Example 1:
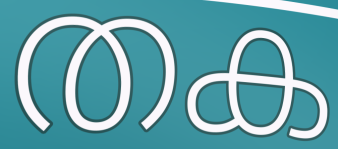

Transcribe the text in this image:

തക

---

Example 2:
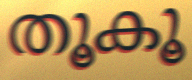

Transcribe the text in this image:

തൂകൂ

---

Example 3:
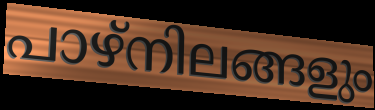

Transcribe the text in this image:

പാഴ്നിലങ്ങളും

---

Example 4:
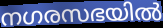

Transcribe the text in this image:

നഗരസഭയിൽ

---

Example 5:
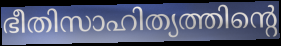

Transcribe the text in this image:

ഭീതിസാഹിത്യത്തിന്റെ